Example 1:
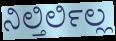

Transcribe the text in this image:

ನಿಲ್ತಿರ್ಲಿಲ್ಲ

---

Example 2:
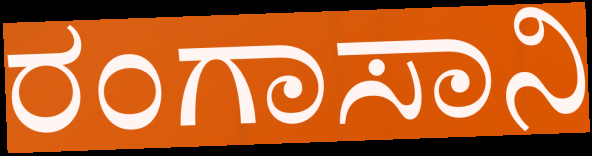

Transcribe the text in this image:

ರಂಗಾಸಾನಿ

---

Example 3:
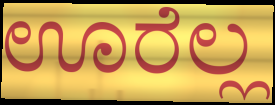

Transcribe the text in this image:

ಊರೆಲ್ಲ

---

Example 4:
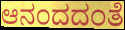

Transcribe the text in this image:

ಆನಂದದಂತೆ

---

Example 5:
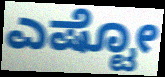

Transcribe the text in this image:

ಎಷ್ಟೋ